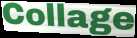
Collage